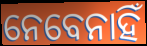
ନେବେନାହିଁ